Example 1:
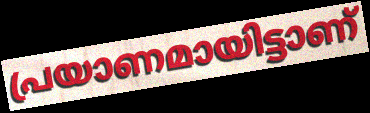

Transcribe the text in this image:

പ്രയാണമായിട്ടാണ്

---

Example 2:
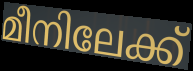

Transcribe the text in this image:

മീനിലേക്ക്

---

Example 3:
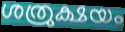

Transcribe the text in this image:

ശത്രുക്ഷയം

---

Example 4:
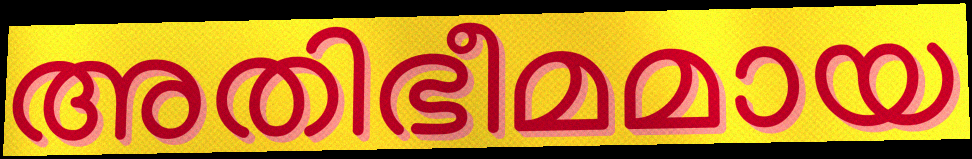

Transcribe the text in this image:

അതിഭീമമായ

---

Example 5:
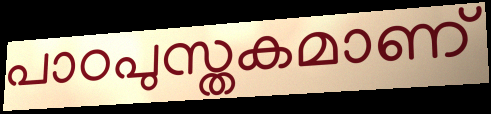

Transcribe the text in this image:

പാഠപുസ്തകമാണ്